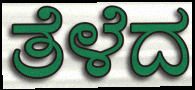
ತೆಳೆದ